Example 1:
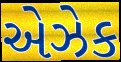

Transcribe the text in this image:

એઝેક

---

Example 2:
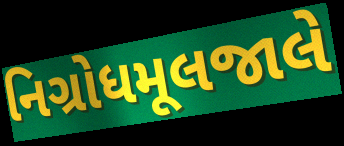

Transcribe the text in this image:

નિગ્રોધમૂલજાલે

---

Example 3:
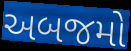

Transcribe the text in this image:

અબજમો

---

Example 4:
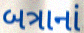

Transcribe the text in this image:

બત્રાનાં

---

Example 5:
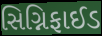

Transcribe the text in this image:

સિગ્નિફાઈડ